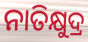
ନାତିକ୍ଷୁଦ୍ର